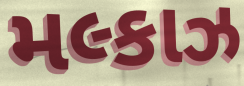
મલ્કાઝ